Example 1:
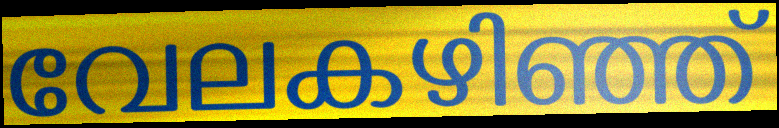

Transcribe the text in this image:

വേലകഴിഞ്ഞ്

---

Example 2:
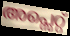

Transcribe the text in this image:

അപ്സെറ്റ്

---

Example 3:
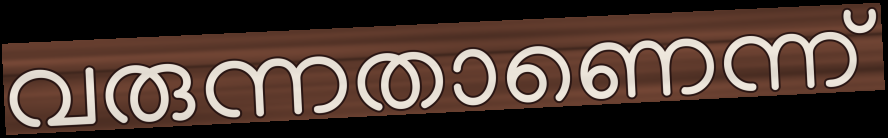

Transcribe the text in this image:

വരുന്നതാണെന്ന്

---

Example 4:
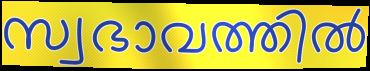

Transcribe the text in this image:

സ്വഭാവത്തിൽ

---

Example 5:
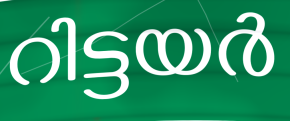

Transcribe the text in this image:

റിട്ടയർ